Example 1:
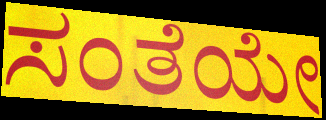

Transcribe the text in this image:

ಸಂತೆಯೇ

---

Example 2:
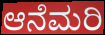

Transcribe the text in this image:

ಆನೆಮರಿ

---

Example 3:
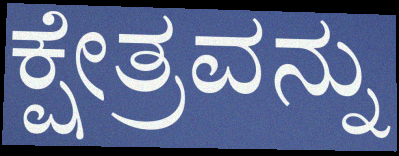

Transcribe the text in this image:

ಕ್ಷೇತ್ರವನ್ನು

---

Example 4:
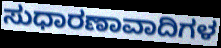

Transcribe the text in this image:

ಸುಧಾರಣಾವಾದಿಗಳ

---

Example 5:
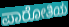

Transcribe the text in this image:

ಪಾರೋತಿಯ